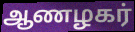
ஆணழகர்